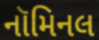
નૉમિનલ